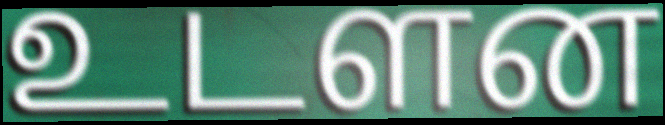
உடளன